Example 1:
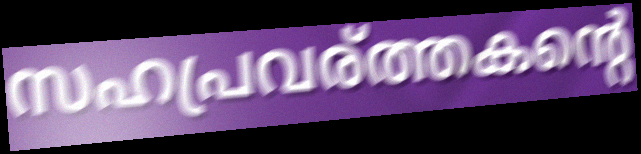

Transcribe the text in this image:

സഹപ്രവര്ത്തകന്റെ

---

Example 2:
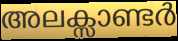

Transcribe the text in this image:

അലക്സാണ്ടർ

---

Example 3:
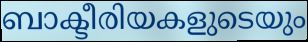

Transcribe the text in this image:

ബാക്ടീരിയകളുടെയും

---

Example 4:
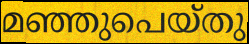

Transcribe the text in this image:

മഞ്ഞുപെയ്തു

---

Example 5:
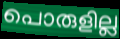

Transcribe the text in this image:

പൊരുളില്ല